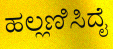
ಹಲ್ಲಣಿಸಿದೈ